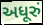
અધૂરું